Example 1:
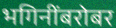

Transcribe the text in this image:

भगिनींबरोबर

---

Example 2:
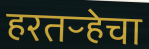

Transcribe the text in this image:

हरतऱ्हेचा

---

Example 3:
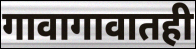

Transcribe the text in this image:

गावागावातही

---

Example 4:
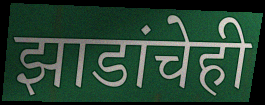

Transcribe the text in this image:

झाडांचेही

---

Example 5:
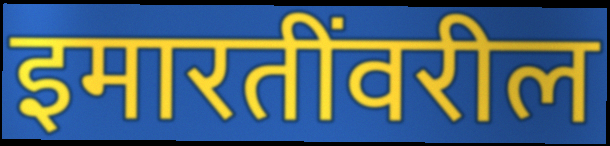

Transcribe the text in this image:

इमारतींवरील